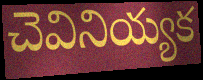
చెవినియ్యక